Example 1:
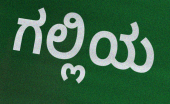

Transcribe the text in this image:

ಗಲ್ಲಿಯ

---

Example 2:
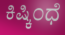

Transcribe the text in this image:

ಕಿಷ್ಕಿಂಧೆ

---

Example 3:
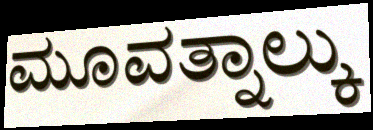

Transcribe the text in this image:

ಮೂವತ್ನಾಲ್ಕು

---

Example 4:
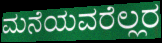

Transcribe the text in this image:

ಮನೆಯವರೆಲ್ಲರ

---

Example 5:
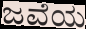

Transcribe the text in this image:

ಜವೆಯ